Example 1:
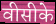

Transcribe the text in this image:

वीसीके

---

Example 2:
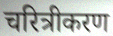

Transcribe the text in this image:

चरित्रीकरण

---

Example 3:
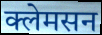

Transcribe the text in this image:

क्लेमसन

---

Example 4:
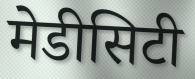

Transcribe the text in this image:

मेडीसिटी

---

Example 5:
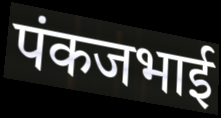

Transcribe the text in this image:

पंकजभाई